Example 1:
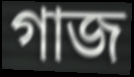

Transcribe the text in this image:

গাজ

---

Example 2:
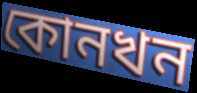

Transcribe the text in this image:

কোনখন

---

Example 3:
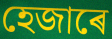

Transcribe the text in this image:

হেজাৰে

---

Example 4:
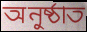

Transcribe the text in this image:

অনুষ্ঠাত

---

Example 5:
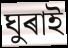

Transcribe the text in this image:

ঘুৰাই